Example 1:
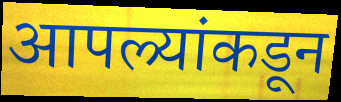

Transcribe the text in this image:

आपल्यांकडून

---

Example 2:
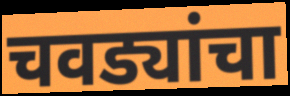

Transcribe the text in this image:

चवड्यांचा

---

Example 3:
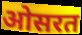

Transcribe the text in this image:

ओसरत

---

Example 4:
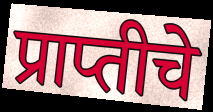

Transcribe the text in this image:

प्राप्तीचे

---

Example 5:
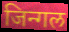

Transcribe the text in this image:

जिन्गल